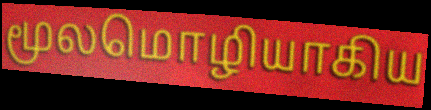
மூலமொழியாகிய